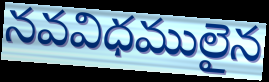
నవవిధములైన